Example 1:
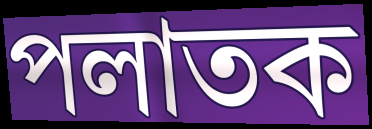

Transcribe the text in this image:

পলাতক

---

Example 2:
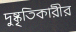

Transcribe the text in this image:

দুষ্কৃতিকারীর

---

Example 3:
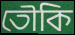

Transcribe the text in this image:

তৌকি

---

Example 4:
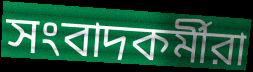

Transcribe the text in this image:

সংবাদকর্মীরা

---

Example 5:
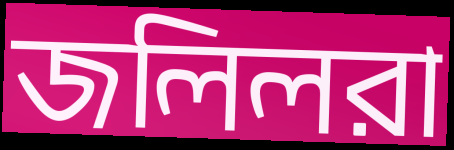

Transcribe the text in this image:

জলিলরা